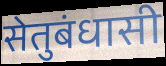
सेतुबंधासी